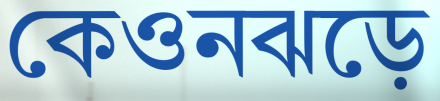
কেওনঝড়ে